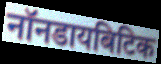
नॉनडायबिटिक